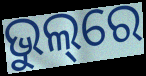
ଭୁଲ୍‌ରେ